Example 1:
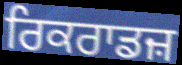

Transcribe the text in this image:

ਰਿਕਰਾਡਜ਼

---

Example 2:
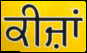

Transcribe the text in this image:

ਕੀਜ਼ਾਂ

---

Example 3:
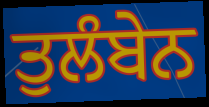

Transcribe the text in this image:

ਤੁਲੰਬੇਨ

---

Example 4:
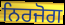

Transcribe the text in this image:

ਨਿਰਜੋਗ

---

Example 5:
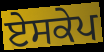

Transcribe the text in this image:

ਏਸਕੇਪ